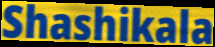
Shashikala